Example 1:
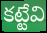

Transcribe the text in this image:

కట్టేవి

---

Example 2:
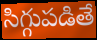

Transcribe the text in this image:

సిగ్గుపడితే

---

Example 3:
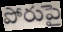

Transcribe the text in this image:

పోరుపై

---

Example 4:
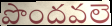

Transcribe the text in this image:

పొందవలె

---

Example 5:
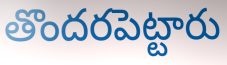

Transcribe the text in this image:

తొందరపెట్టారు